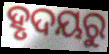
ହୃଦୟରୁ